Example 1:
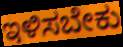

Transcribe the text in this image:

ಇಳಿಸಬೇಕು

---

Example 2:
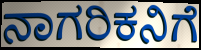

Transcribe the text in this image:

ನಾಗರಿಕನಿಗೆ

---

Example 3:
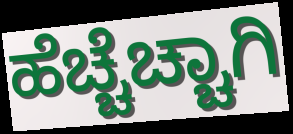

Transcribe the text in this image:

ಹೆಚ್ಚೆಚ್ಚಾಗಿ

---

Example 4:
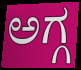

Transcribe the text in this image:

ಅಗ್ಗ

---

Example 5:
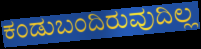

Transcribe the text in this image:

ಕಂಡುಬಂದಿರುವುದಿಲ್ಲ